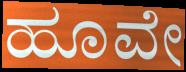
ಹೂವೇ